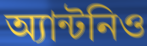
অ্যান্টনিও